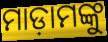
ମାଡ଼ାମଙ୍କୁ